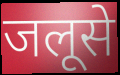
जलूसे